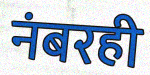
नंबरही